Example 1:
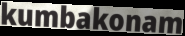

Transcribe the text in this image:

kumbakonam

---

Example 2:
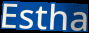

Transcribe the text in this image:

Estha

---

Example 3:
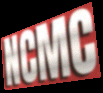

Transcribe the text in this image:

NCMC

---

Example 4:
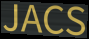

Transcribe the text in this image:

JACS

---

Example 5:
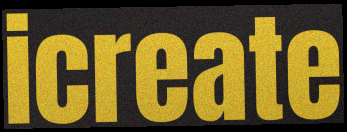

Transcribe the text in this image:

icreate